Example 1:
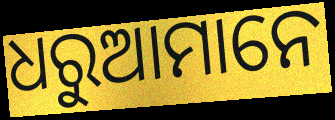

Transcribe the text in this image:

ଧରୁଆମାନେ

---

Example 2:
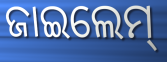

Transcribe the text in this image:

ଜାଇଲେମ୍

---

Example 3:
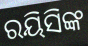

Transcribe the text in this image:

ରୟିସିଙ୍କ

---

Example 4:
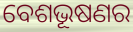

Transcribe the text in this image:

ବେଶଭୂଷଣର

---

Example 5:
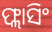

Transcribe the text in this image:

ଫ୍ଲାସିଂ